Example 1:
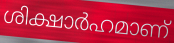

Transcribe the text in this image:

ശിക്ഷാർഹമാണ്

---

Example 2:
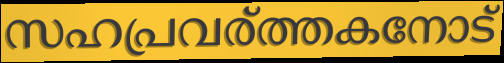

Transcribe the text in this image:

സഹപ്രവര്ത്തകനോട്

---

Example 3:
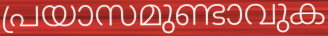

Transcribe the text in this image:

പ്രയാസമുണ്ടാവുക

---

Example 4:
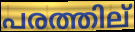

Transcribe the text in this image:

പരത്തില്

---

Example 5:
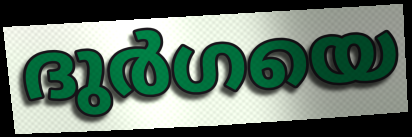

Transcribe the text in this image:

ദുർഗയെ